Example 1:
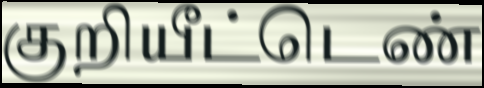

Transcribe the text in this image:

குறியீட்டெண்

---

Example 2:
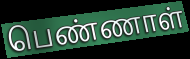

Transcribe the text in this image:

பெண்ணாள்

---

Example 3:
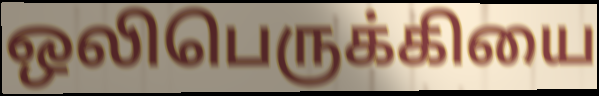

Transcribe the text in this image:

ஒலிபெருக்கியை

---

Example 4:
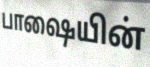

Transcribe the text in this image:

பாஷையின்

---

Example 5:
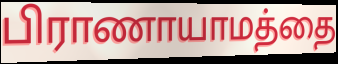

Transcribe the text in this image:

பிராணாயாமத்தை